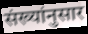
संख्यांनुसार